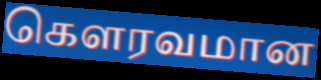
கெளரவமான